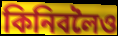
কিনিবলৈও